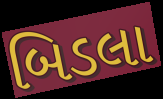
બિડલા